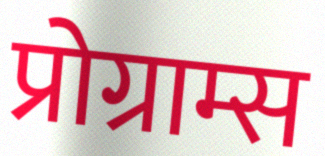
प्रोग्राम्स